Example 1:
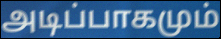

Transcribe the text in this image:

அடிப்பாகமும்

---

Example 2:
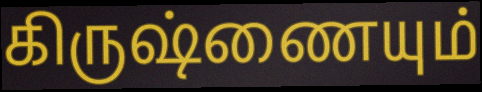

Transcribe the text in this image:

கிருஷ்ணையும்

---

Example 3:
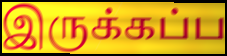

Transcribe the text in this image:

இருக்கப்ப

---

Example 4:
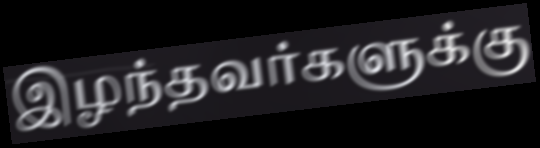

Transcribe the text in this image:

இழந்தவர்களுக்கு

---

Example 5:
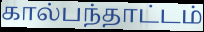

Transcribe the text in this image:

கால்பந்தாட்டம்